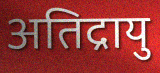
अतिद्रायु